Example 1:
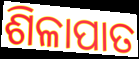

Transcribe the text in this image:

ଶିଳାପାତ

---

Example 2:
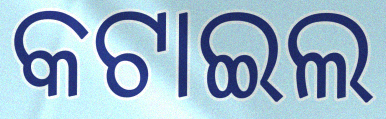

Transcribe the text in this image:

କଟାଇଲ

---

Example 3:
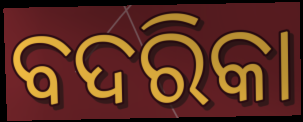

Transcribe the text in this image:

ବଦରିକା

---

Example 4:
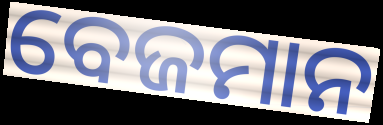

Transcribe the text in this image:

ବେଜମାନ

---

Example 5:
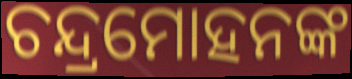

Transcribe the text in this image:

ଚନ୍ଦ୍ରମୋହନଙ୍କ